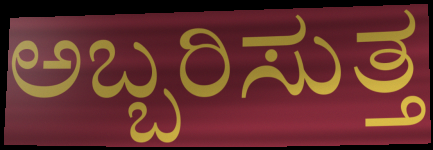
ಅಬ್ಬರಿಸುತ್ತ